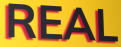
REAL